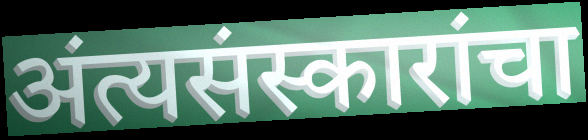
अंत्यसंस्कारांचा